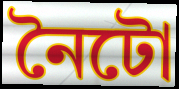
নৈটো